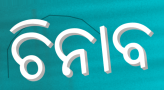
ଚିନାବ